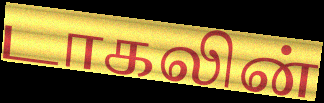
டாகலின்